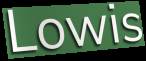
Lowis